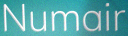
Numair